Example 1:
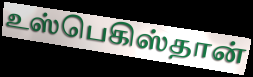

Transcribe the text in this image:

உஸ்பெகிஸ்தான்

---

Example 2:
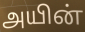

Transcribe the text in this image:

அயின்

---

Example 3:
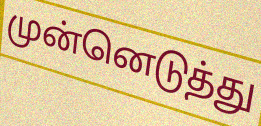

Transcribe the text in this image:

முன்னெடுத்து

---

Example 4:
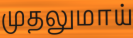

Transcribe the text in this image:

முதலுமாய்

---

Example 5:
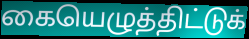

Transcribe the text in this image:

கையெழுத்திட்டுக்